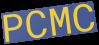
PCMC